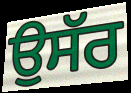
ਉਸੱਰ